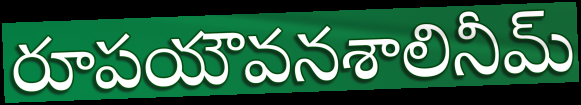
రూపయౌవనశాలినీమ్